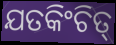
ଯତକିଂଚିତ୍